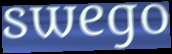
swego